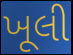
ખૂલી